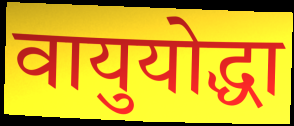
वायुयोद्धा